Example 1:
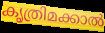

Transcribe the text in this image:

കൃത്രിമക്കാൽ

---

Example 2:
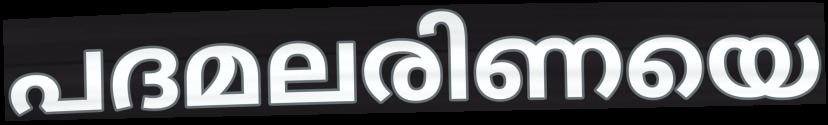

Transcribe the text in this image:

പദമലരിണയെ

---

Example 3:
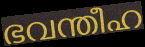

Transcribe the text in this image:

ഭവന്തീഹ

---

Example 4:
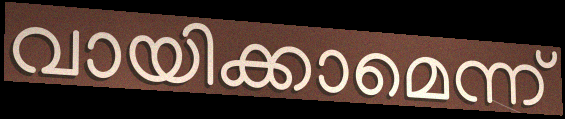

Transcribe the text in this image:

വായിക്കാമെന്ന്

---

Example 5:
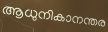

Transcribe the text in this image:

ആധുനികാനന്തര